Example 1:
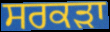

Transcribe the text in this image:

ਸਰਕੜਾ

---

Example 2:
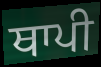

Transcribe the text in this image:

ਥਾਪੀ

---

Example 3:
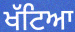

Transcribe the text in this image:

ਖੱਟਿਆ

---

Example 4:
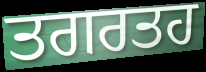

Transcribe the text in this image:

ਤਗਰਤਹ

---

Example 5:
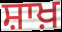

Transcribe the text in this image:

ਸ਼ਾਖ਼